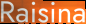
Raisina